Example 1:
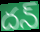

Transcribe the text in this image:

దన్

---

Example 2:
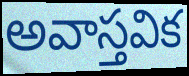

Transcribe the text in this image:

అవాస్తవిక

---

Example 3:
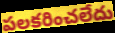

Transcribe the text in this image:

పలకరించలేదు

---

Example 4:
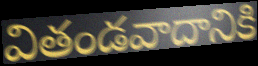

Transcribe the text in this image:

వితండవాదానికి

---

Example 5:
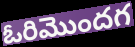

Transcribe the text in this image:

ఓరిమొందగ